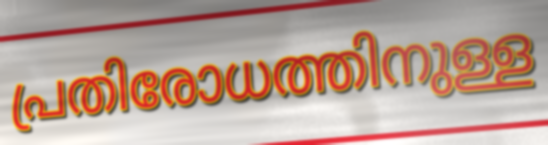
പ്രതിരോധത്തിനുള്ള